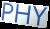
PHY